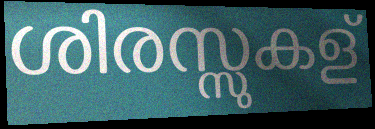
ശിരസ്സുകള്